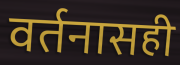
वर्तनासही